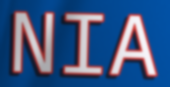
NIA